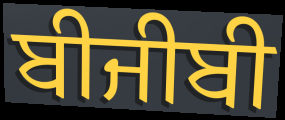
ਬੀਜੀਬੀ